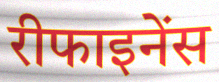
रीफाइनेंस